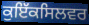
ਕੁਇੱਕਸਿਲਵਰ